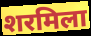
शरमिला